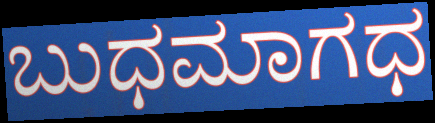
ಬುಧಮಾಗಧ